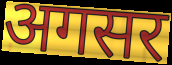
अगसर